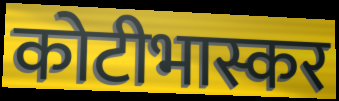
कोटीभास्कर